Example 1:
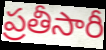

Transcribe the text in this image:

ప్రతీసారీ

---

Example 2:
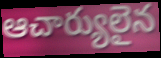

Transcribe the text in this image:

ఆచార్యులైన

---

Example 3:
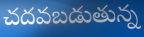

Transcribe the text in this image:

చదవబడుతున్న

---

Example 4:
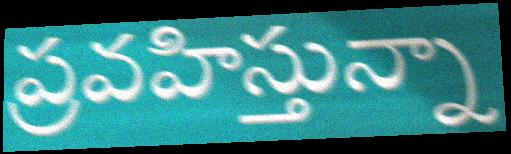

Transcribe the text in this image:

ప్రవహిస్తున్నా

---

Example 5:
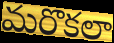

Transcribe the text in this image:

మరొకలా